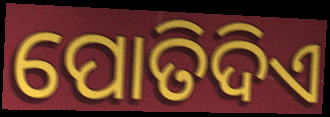
ପୋତିଦିଏ